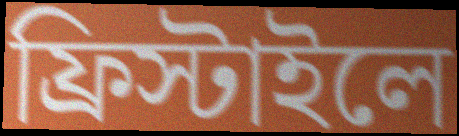
ফ্রিস্টাইলে